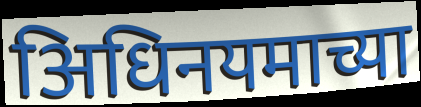
अिधिनयमाच्या